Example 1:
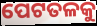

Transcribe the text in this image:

ପେଟତଳକୁ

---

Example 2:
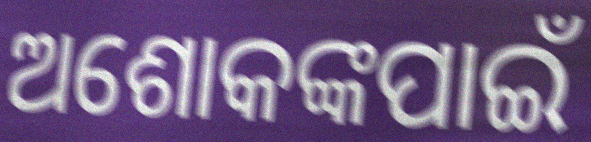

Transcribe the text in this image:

ଅଶୋକଙ୍କପାଇଁ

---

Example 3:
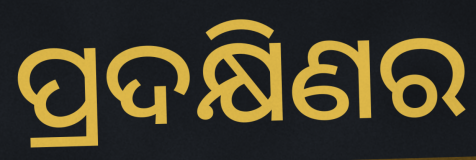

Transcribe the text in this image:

ପ୍ରଦକ୍ଷିଣର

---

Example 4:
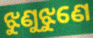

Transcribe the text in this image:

ଝୁଣୁଝୁଣେ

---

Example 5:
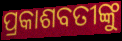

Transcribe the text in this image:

ପ୍ରକାଶବତୀଙ୍କୁ